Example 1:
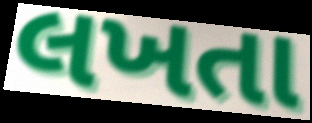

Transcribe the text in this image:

લખતા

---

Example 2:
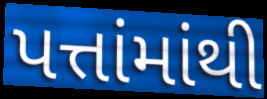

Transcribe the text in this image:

પત્તાંમાંથી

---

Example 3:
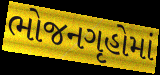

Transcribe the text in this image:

ભોજનગૃહોમાં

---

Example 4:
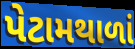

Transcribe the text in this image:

પેટામથાળાં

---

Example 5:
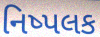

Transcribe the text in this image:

નિષ્પલક